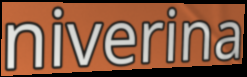
niverina